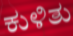
ಕುಳಿತು